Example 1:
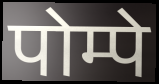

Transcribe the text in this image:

पोम्पे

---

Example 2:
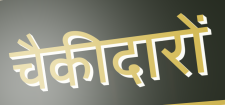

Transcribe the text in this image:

चैकीदारों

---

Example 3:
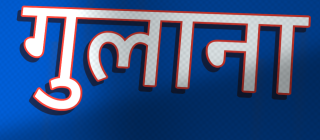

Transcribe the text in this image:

गुलाना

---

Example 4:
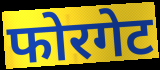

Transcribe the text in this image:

फोरगेट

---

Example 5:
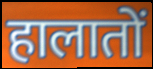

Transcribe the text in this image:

हालातों